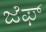
ಜೆಫ್